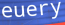
euery